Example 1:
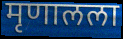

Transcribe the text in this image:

मृणालला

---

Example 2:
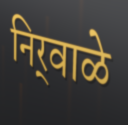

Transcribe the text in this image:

निर्वाळे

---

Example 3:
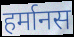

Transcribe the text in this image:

हर्मानस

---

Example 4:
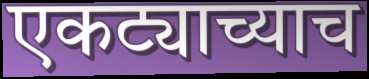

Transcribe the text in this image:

एकट्याच्याच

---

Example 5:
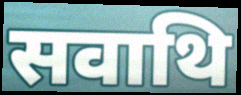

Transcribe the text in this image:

सवाथि